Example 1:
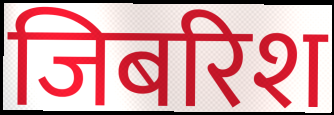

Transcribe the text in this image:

जिबरिश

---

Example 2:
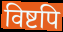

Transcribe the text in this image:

विष्टपि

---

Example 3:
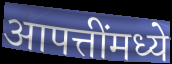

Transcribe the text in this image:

आपत्तींमध्ये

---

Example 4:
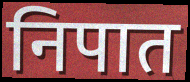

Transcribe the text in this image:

निपात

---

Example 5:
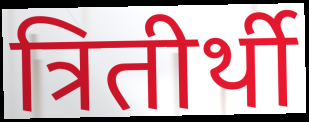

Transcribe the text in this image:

त्रितीर्थी